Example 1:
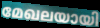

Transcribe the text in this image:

മേഖലയായി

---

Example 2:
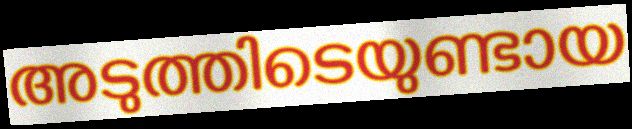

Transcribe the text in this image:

അടുത്തിടെയുണ്ടായ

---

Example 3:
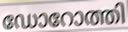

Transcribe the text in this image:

ഡോറോത്തി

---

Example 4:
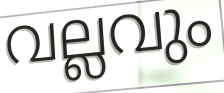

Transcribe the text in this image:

വല്ലവും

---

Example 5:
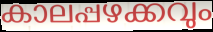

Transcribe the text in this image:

കാലപ്പഴക്കവും